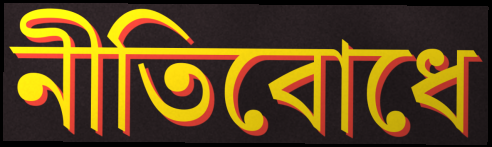
নীতিবোধে